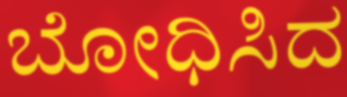
ಬೋಧಿಸಿದ